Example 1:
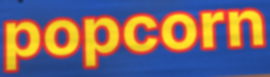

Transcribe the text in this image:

popcorn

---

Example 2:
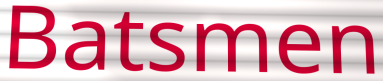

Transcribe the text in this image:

Batsmen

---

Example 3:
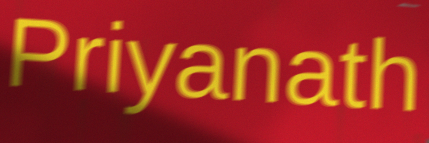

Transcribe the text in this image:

Priyanath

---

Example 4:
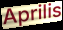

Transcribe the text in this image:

Aprilis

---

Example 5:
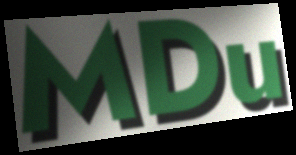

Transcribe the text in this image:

MDu